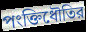
পংক্তিধৌতির